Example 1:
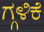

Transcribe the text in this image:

ಗ್ಗಳಿಕೆ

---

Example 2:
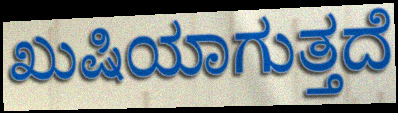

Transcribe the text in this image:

ಖುಷಿಯಾಗುತ್ತದೆ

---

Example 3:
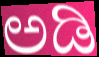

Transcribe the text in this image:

ಅಡಿ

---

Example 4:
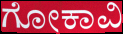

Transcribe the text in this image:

ಗೋಕಾವಿ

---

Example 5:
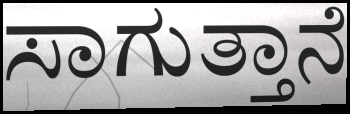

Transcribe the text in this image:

ಸಾಗುತ್ತಾನೆ